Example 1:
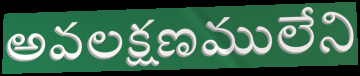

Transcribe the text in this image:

అవలక్షణములేని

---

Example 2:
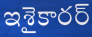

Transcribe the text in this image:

ఇశైకారర్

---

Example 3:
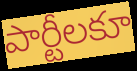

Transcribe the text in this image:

పార్టీలకూ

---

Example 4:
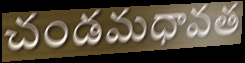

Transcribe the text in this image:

చండమధావత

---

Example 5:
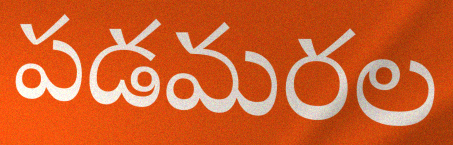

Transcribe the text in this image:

పడమరల